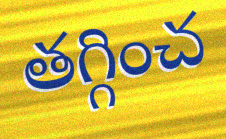
తగ్గించ